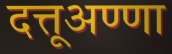
दत्तूअण्णा